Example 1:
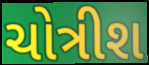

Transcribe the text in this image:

ચોત્રીશ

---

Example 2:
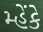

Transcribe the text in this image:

મ્હેંકે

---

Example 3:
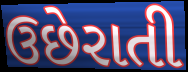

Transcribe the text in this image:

ઉછેરાતી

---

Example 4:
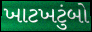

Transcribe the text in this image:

ખાટખટુંબો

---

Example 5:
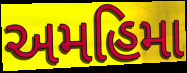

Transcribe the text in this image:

અમહિમા